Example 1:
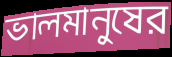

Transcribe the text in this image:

ভালমানুষের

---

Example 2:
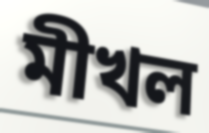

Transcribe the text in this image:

মীখল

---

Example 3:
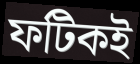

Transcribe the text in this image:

ফটিকই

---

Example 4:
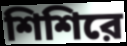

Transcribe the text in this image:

শিশিরে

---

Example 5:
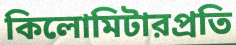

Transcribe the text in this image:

কিলোমিটারপ্রতি